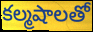
కల్మషాలతో